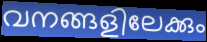
വനങ്ങളിലേക്കും